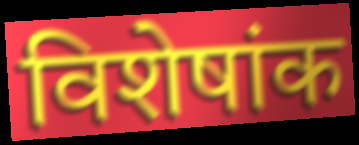
विशेषांक